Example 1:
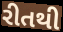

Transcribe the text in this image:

રીતથી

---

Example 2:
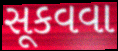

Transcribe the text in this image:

સૂકવવા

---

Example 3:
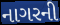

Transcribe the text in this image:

નાગરની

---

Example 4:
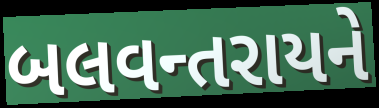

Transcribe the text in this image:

બલવન્તરાયને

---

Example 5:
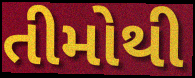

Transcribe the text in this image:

તીમોથી